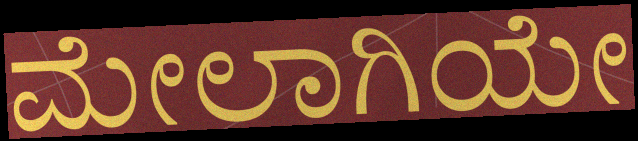
ಮೇಲಾಗಿಯೇ